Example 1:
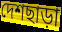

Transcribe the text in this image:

দেশছাড়া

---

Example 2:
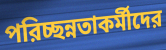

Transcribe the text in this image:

পরিচ্ছন্নতাকর্মীদের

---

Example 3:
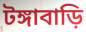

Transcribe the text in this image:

টঙ্গাবাড়ি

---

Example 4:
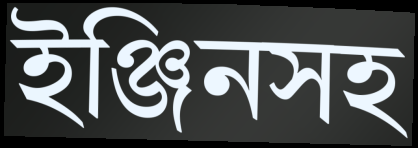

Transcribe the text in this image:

ইঞ্জিনসহ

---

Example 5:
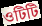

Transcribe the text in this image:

ওটিটি